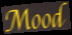
Mood